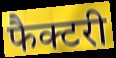
फैक्टरी